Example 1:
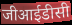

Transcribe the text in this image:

जीआईडीसी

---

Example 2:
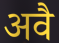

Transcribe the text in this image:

अवै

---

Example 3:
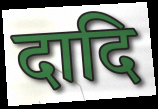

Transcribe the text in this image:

दादि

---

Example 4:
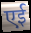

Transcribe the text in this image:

एई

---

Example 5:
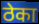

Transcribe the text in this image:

ठेका